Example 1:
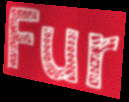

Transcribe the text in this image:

Fur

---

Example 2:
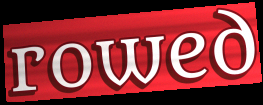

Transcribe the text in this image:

rowed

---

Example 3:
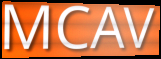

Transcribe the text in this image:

MCAV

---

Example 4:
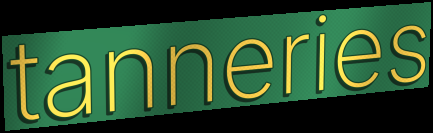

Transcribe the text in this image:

tanneries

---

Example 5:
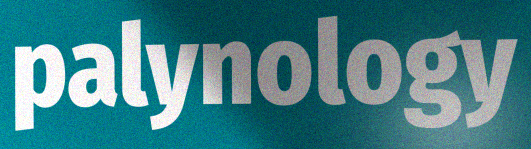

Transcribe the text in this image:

palynology